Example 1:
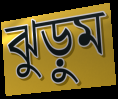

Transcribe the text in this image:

ঝুড়ুম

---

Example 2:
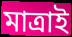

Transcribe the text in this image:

মাত্রাই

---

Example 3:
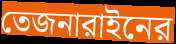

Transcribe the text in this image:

তেজনারাইনের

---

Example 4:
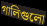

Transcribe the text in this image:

গালিগুলো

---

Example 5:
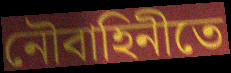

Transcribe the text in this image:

নৌবাহিনীতে